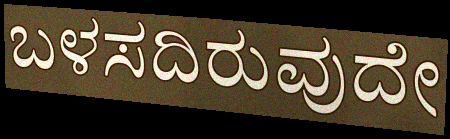
ಬಳಸದಿರುವುದೇ